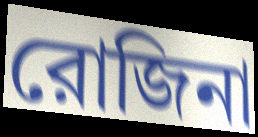
রোজিনা